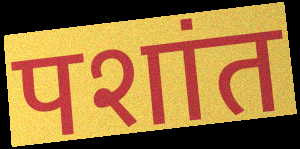
पशांत